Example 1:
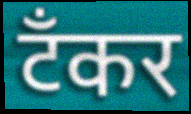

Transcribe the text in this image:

टँकर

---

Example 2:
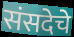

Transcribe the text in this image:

संसदेचे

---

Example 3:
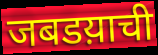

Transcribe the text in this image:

जबडय़ाची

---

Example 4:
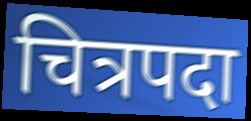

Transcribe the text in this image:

चित्रपदा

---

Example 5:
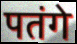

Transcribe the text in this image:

पतंगे